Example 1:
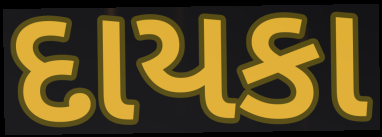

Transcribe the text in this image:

દાયકા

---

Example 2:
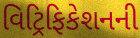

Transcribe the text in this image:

વિટ્રિફિકેશનની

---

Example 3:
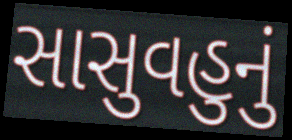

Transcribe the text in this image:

સાસુવહુનું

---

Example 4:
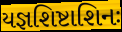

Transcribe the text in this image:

યજ્ઞશિષ્ટાશિનઃ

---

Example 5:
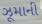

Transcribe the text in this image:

ઝૂમાની